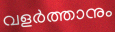
വളർത്താനും